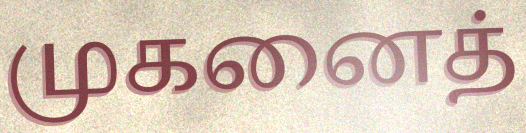
முகனைத்